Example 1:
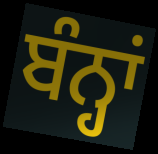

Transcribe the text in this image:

ਬੰਨ੍ਹਾਂ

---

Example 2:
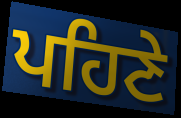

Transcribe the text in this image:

ਪਹਿਣੇ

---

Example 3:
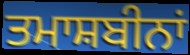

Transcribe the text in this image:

ਤਮਾਸ਼ਬੀਨਾਂ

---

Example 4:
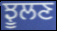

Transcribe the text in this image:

ਝੂਲਣ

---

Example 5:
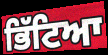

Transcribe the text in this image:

ਭਿੱਟਿਆ